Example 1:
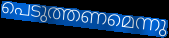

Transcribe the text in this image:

പെടുത്തണമെന്നു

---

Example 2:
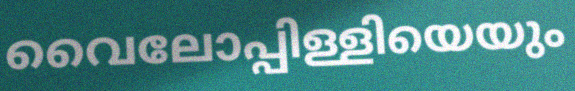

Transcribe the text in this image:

വൈലോപ്പിള്ളിയെയും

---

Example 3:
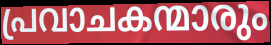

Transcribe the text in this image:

പ്രവാചകന്മാരും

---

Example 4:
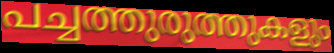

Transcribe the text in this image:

പച്ചത്തുരുത്തുകളും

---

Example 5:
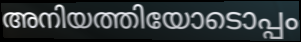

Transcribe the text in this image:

അനിയത്തിയോടൊപ്പം